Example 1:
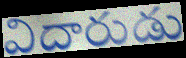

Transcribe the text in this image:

విదారుడు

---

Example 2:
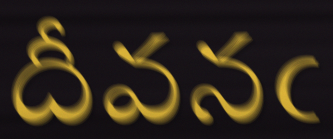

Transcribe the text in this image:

దీవనఁ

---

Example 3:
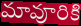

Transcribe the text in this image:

మావూరికి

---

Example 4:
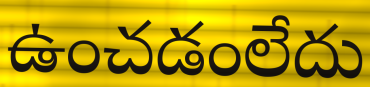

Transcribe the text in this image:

ఉంచడంలేదు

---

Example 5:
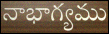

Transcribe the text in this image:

నాభాగ్యము